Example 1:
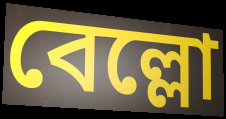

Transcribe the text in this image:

বেল্লো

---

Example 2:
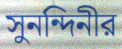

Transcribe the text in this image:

সুনন্দিনীর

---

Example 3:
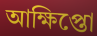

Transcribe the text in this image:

আক্ষিপ্তো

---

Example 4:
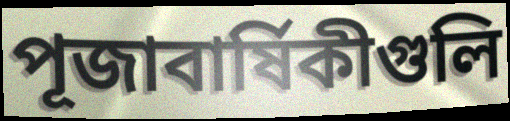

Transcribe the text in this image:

পূজাবার্ষিকীগুলি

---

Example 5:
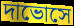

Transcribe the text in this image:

দাভোসে